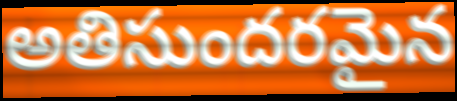
అతిసుందరమైన